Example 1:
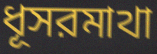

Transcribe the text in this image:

ধূসরমাথা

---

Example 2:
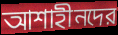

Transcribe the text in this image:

আশাহীনদের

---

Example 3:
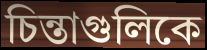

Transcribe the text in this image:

চিন্তাগুলিকে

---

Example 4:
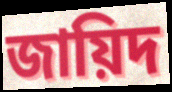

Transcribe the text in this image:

জায়িদ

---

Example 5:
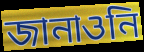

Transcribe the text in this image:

জানাওনি